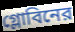
গ্লোবিনের